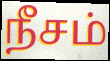
நீசம்